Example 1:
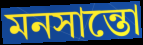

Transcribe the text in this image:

মনসান্তো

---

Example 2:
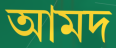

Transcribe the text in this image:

আমদ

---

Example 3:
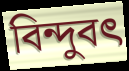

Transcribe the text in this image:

বিন্দুবৎ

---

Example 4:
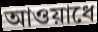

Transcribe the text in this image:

আওয়াধে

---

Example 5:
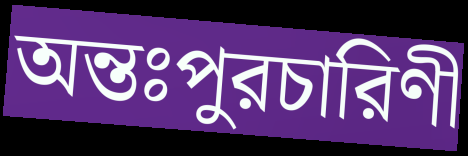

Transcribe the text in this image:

অন্তঃপুরচারিণী